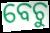
ବେଚୁ